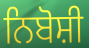
ਨਿਬੋਸ਼ੀ